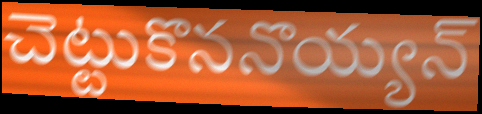
చెట్టుకొననొయ్యన్